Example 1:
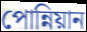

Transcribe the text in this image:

পোন্নিয়ান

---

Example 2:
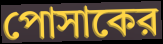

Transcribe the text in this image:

পোসাকের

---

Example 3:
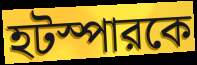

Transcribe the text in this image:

হটস্পারকে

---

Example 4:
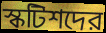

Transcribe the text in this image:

স্কটিশদের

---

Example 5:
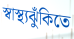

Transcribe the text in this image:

স্বাস্থ্যঝুঁকিতে